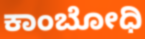
ಕಾಂಬೋಧಿ